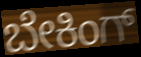
ಬೇಕಿಂಗ್